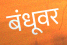
बंधूवर